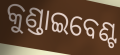
କୁଣ୍ଡାଇବେଣ୍ଟ